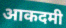
आकदमी